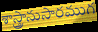
శాస్త్రానుసారముగ